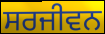
ਸਰਜੀਵਨ